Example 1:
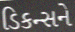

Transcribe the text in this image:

ડિકન્સને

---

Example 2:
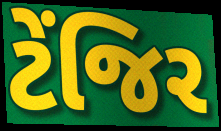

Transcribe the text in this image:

ટેંજિર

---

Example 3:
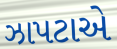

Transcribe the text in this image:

ઝાપટાએ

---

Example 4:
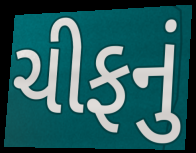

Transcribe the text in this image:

ચીફનું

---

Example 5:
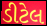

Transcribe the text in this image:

ડીટેલ